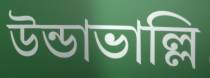
উন্ডাভাল্লি